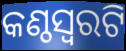
କଣ୍ଠସ୍ଵରଟି